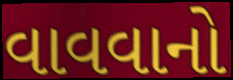
વાવવાનો